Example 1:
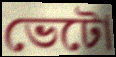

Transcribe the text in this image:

ভেটো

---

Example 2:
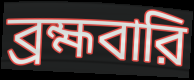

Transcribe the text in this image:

ব্রহ্মবারি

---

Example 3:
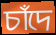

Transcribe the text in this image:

চাঁদে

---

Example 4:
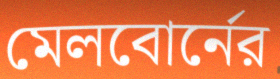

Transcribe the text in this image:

মেলবোর্নের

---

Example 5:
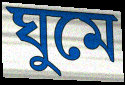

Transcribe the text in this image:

ঘুমে